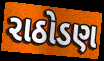
રાઠોડણ